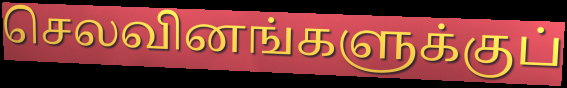
செலவினங்களுக்குப்